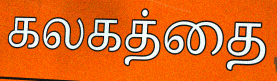
கலகத்தை